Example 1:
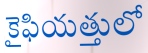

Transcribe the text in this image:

కైఫియత్తులో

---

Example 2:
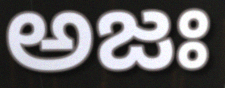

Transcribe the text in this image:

అజః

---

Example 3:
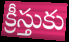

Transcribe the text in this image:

క్రీస్తుకు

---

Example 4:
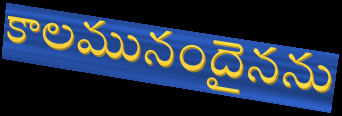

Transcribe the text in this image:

కాలమునందైనను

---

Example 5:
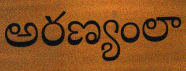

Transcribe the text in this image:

అరణ్యంలా